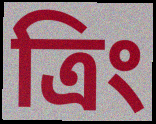
ত্রিং